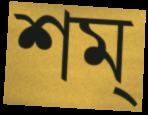
শম্